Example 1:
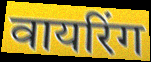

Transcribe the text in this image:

वायरिंग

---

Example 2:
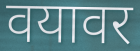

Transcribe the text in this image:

वयावर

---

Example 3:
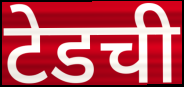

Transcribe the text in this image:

टेडची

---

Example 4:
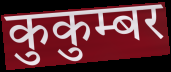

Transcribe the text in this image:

कुकुम्बर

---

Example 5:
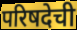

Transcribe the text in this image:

परिषदेची